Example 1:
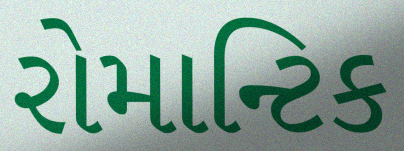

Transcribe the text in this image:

રોમાન્ટિક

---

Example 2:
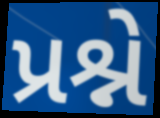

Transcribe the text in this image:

પ્રશ્ને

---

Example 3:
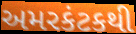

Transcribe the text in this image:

અમરકંટકથી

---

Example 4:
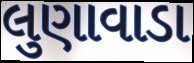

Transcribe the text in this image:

લુણાવાડા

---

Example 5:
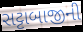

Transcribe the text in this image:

સટ્ટાબાજીની